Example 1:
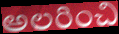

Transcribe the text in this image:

అలరించి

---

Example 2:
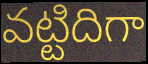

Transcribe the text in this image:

వట్టిదిగా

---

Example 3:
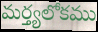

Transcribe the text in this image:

మర్త్యలోకము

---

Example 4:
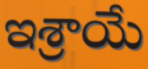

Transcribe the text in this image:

ఇశ్రాయే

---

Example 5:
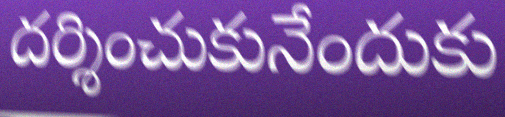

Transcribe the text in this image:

దర్శించుకునేందుకు